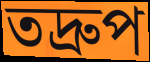
তদ্ৰুপ